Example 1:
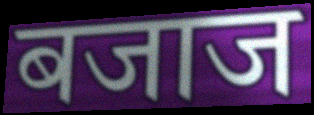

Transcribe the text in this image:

बजाज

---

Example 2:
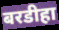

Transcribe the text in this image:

बरडीहा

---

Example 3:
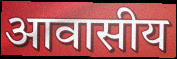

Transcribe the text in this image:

आवासीय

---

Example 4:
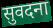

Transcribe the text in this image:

सुवदना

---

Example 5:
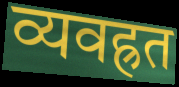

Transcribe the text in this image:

व्यवह्रत